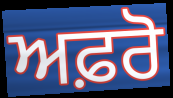
ਅਫ਼ਰੋ